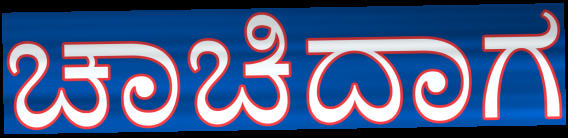
ಚಾಚಿದಾಗ